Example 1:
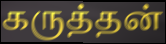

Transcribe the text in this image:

கருத்தன்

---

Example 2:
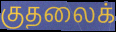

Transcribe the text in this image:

குதலைக்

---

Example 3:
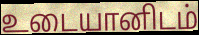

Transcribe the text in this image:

உடையானிடம்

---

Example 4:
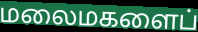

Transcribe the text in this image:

மலைமகளைப்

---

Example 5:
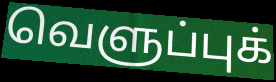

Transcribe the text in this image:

வெளுப்புக்